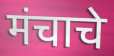
मंचाचे